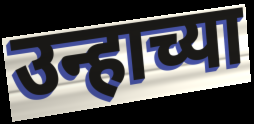
उन्हाच्या